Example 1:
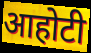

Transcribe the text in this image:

आहोटी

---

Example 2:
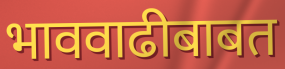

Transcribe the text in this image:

भाववाढीबाबत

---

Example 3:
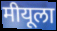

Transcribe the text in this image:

मीयूला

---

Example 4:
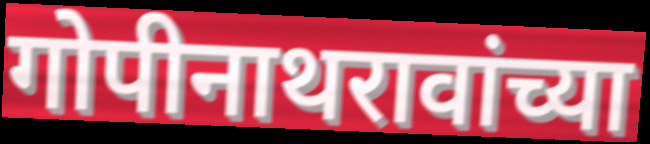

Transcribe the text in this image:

गोपीनाथरावांच्या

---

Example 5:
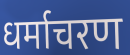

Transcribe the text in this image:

धर्माचरण